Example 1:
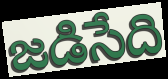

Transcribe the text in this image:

జడిసేది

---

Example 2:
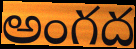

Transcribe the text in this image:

అంగద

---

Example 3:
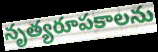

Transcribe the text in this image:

నృత్యరూపకాలను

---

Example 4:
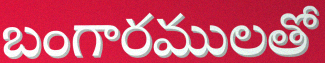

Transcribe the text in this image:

బంగారములతో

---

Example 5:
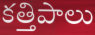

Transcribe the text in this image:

కత్తిపాలు